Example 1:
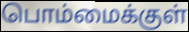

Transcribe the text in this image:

பொம்மைக்குள்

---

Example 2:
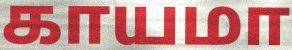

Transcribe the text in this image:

காயமா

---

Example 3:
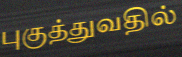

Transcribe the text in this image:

புகுத்துவதில்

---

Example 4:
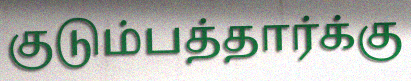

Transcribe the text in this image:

குடும்பத்தார்க்கு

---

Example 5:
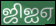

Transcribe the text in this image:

ஜிஐஏ